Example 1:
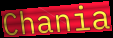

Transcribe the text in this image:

Chania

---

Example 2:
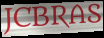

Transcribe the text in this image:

JCBRAS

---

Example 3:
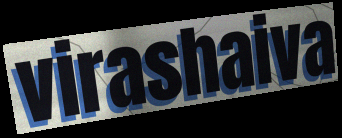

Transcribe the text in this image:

virashaiva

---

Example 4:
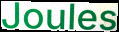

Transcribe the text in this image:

Joules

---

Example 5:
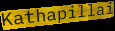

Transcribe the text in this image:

Kathapillai